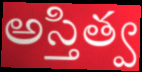
అస్తిత్వ